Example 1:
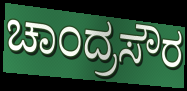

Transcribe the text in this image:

ಚಾಂದ್ರಸೌರ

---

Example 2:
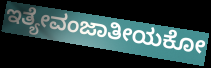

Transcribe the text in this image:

ಇತ್ಯೇವಂಜಾತೀಯಕೋ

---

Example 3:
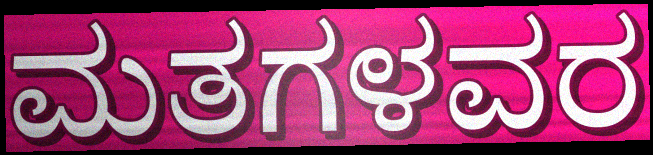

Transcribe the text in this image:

ಮತಗಳವರ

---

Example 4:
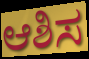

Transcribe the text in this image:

ಆಶಿಸ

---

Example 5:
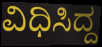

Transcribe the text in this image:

ವಿಧಿಸಿದ್ದ